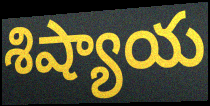
శిష్యాయ